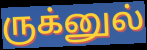
ருக்னுல்